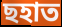
ছহাত